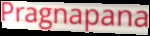
Pragnapana